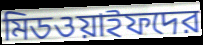
মিডওয়াইফদের